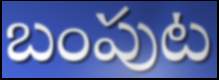
బంపుట